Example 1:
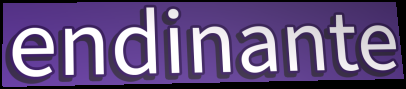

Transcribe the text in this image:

endinante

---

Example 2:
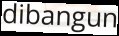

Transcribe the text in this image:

dibangun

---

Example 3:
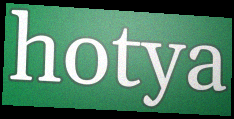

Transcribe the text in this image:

hotya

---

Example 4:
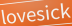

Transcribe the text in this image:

lovesick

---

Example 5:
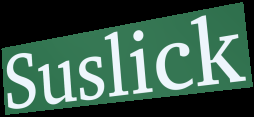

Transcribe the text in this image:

Suslick